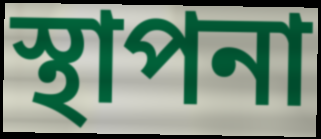
স্থাপনা